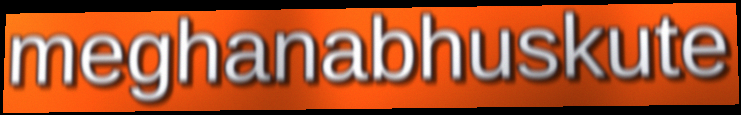
meghanabhuskute